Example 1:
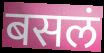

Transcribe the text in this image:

बसलं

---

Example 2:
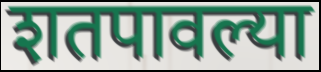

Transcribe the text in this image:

शतपावल्या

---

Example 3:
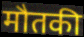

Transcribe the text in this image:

मौतकी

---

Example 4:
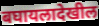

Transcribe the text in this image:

बघायलादेखील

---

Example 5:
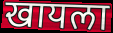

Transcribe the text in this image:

खायला